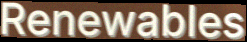
Renewables